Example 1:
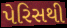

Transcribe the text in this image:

પેરિસથી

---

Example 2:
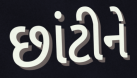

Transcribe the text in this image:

છાંટીને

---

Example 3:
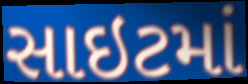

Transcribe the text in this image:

સાઇટમાં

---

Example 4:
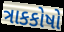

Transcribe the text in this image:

ત્રાકકોષો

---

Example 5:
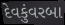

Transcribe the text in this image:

દેવકુંવરબા